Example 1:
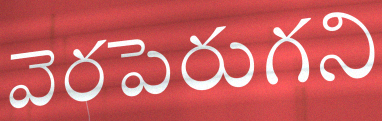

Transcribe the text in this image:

వెరపెరుగని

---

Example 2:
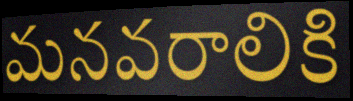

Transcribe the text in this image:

మనవరాలికి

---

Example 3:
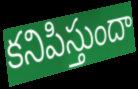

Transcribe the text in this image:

కనిపిస్తుందా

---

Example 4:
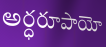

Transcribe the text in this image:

అర్ధరూపాయో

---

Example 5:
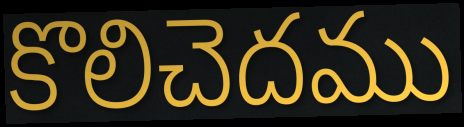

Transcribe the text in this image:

కొలిచెదము